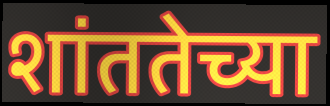
शांततेच्या